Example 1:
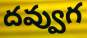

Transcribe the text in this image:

దవ్వుగ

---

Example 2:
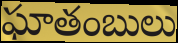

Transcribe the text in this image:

ఘాతంబులు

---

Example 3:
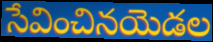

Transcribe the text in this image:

సేవించినయెడల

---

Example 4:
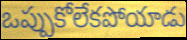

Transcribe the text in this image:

ఒప్పుకోలేకపోయాడు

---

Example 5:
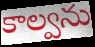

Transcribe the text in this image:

కాల్వను